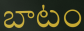
బాటం